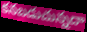
కనబడుచున్నదా